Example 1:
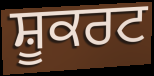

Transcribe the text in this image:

ਸ਼ੂਕਰਟ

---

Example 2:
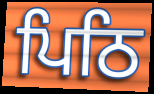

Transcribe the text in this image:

ਪਿਠਿ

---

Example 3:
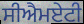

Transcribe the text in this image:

ਸੀਐਮਏਟੀ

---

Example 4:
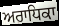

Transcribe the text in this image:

ਅਰਾਧਿਕਾ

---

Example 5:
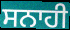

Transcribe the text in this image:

ਸਨਾਹੀ